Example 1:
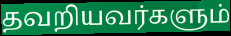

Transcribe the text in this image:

தவறியவர்களும்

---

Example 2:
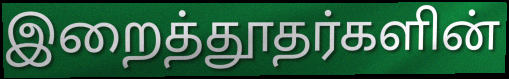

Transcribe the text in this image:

இறைத்தூதர்களின்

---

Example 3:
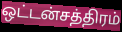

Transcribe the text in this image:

ஒட்டன்சத்திரம்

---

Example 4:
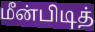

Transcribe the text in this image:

மீன்பிடித்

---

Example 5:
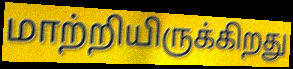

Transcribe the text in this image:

மாற்றியிருக்கிறது